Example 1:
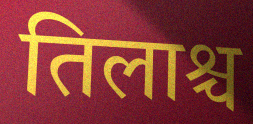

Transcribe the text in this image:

तिलाश्च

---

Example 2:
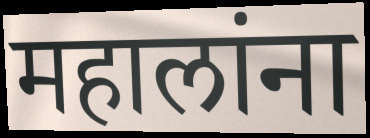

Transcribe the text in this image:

महालांना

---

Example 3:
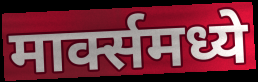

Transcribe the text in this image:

मार्क्समध्ये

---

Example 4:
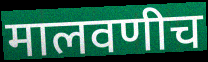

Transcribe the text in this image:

मालवणीच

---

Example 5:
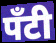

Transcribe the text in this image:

पॅंटी